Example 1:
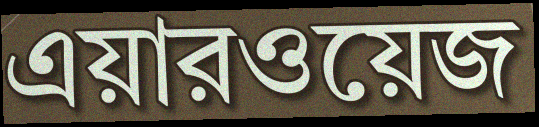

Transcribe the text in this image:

এয়ারওয়েজ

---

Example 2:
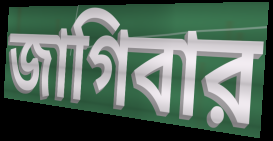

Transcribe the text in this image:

জাগিবার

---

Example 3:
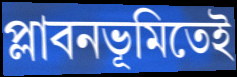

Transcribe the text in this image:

প্লাবনভূমিতেই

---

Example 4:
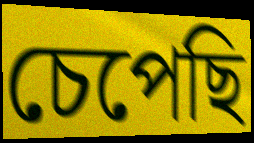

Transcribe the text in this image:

চেপেছি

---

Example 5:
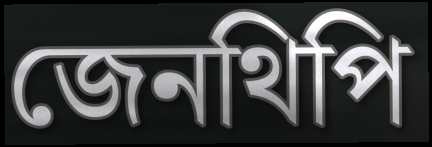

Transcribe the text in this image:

জেনথিপি